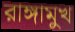
রাঙ্গামুখ